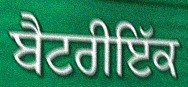
ਬੈਟਰੀਇੱਕ